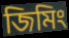
জিমিং